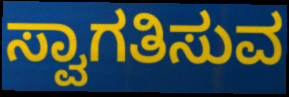
ಸ್ವಾಗತಿಸುವ